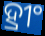
ହ୍ରୀଂ